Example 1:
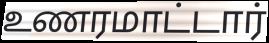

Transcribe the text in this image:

உணரமாட்டார்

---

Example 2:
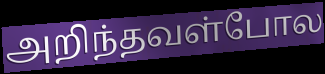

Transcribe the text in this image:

அறிந்தவள்போல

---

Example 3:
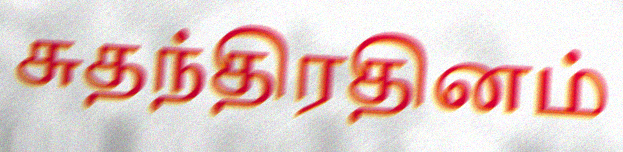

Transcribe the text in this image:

சுதந்திரதினம்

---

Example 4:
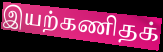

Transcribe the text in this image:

இயற்கணிதக்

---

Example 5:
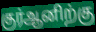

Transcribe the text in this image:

குர்ஆனிற்கு